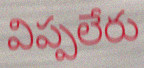
విప్పలేరు